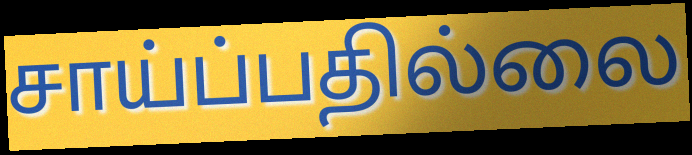
சாய்ப்பதில்லை